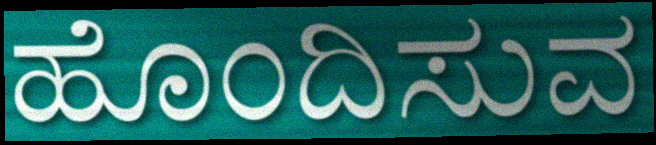
ಹೊಂದಿಸುವ